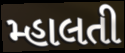
મ્હાલતી